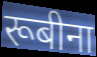
रूबीना